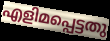
എളിമപ്പെട്ടതു